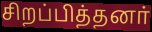
சிறப்பித்தனர்